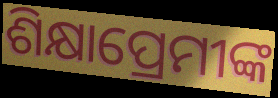
ଶିକ୍ଷାପ୍ରେମୀଙ୍କ